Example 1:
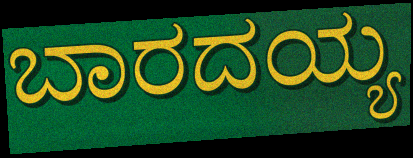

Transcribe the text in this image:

ಬಾರದಯ್ಯ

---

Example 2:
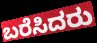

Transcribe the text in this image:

ಬರೆಸಿದರು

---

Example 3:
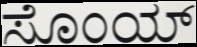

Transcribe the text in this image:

ಸೊಂಯ್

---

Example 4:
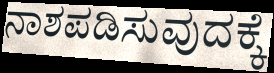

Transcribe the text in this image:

ನಾಶಪಡಿಸುವುದಕ್ಕೆ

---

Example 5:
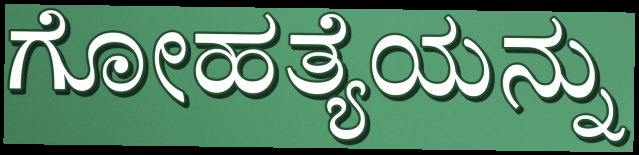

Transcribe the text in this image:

ಗೋಹತ್ಯೆಯನ್ನು